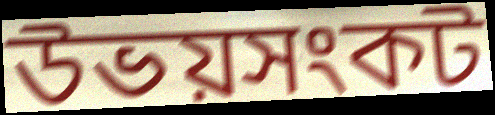
উভয়সংকট